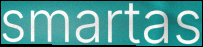
smartas